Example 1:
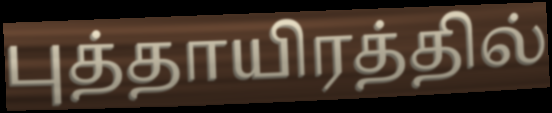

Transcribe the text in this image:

புத்தாயிரத்தில்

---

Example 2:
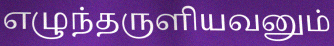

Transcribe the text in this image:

எழுந்தருளியவனும்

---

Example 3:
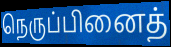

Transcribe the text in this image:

நெருப்பினைத்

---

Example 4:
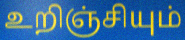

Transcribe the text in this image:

உறிஞ்சியும்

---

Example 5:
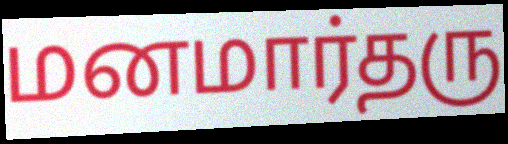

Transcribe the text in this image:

மனமார்தரு